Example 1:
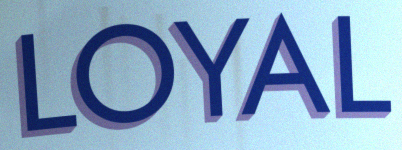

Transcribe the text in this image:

LOYAL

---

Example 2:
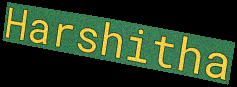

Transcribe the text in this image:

Harshitha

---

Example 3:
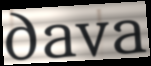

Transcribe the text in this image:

dava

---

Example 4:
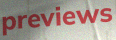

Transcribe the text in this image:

previews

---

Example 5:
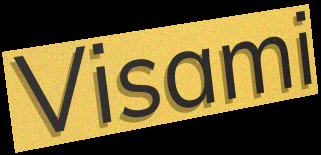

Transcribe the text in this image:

Visami